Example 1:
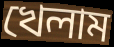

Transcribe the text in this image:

খেলাম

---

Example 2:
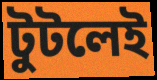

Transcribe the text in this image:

টুটলেই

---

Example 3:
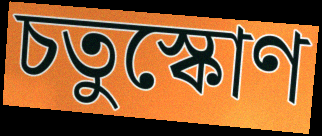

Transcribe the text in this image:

চতুস্কোণ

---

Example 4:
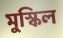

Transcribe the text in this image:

মুস্কিল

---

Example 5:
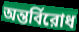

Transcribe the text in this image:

অন্তর্বিরোধ